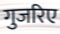
गुजरिए